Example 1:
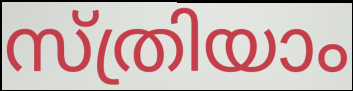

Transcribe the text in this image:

സ്ത്രിയാം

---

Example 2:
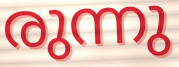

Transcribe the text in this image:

രുന്നു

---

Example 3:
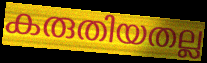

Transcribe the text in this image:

കരുതിയതല്ല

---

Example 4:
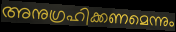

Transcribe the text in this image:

അനുഗ്രഹിക്കണമെന്നും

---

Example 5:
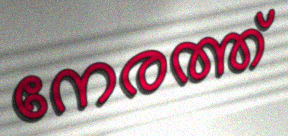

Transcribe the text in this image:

നേരത്ത്